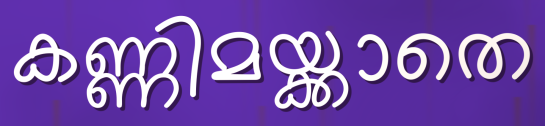
കണ്ണിമയ്ക്കാതെ